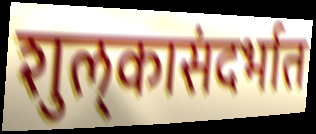
शुल्कासंदर्भात